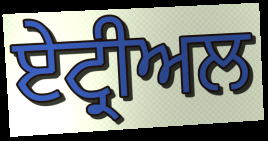
ਏਟ੍ਰੀਅਲ